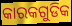
କାରକଗୁଡିକ